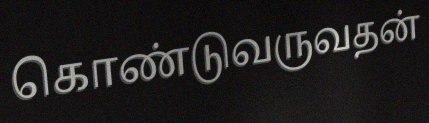
கொண்டுவருவதன்